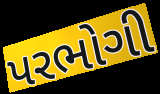
પરભોગી